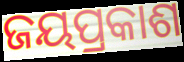
ଜୟପ୍ରକାଶ